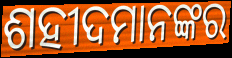
ଶହୀଦମାନଙ୍କର